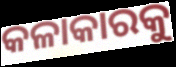
କଳାକାରକୁ